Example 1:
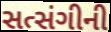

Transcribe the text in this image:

સત્સંગીની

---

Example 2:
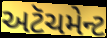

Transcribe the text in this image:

અટૅચમેન્ટ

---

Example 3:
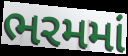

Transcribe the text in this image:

ભરમમાં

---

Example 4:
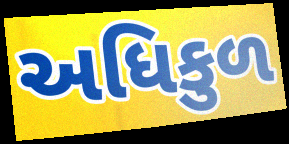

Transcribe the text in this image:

અધિકુળ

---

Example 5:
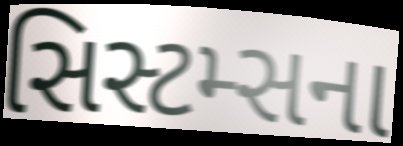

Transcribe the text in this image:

સિસ્ટમ્સના